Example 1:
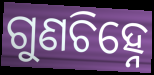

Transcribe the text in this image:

ଗୁଣଚିହ୍ନେ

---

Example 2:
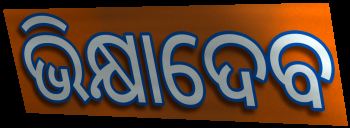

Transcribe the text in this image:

ଭିକ୍ଷାଦେବ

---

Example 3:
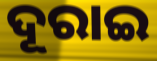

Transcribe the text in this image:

ଦୂରାଇ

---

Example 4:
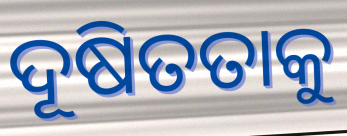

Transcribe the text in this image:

ଦୂଷିତତାକୁ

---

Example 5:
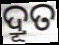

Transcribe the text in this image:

ଦ୍ରୂତ